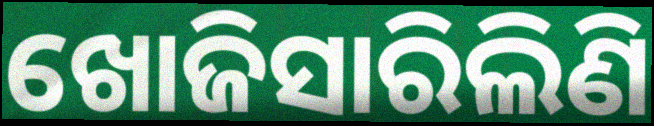
ଖୋଜିସାରିଲିଣି